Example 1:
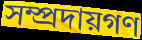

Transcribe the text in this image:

সম্প্রদায়গণ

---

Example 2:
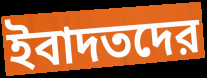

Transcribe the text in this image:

ইবাদতদের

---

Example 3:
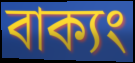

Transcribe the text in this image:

বাক্যং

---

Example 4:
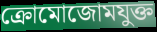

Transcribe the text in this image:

ক্রোমোজোমযুক্ত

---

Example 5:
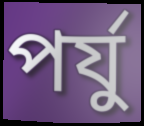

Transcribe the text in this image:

পর্যু